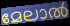
മേലാൽ